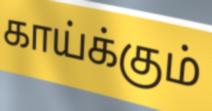
காய்க்கும்